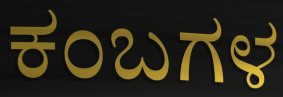
ಕಂಬಗಳ